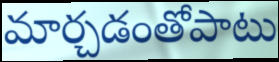
మార్చడంతోపాటు